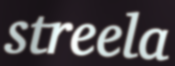
streela